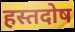
हस्तदोष